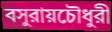
বসুরায়চৌধুরী